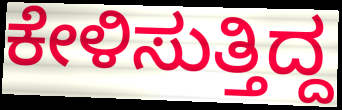
ಕೇಳಿಸುತ್ತಿದ್ದ